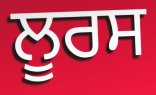
ਲੂਰਸ